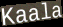
Kaala